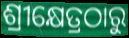
ଶ୍ରୀକ୍ଷେତ୍ରଠାରୁ